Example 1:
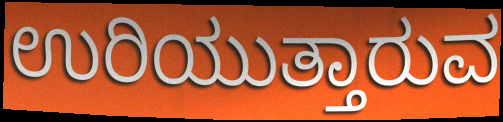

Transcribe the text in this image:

ಉರಿಯುತ್ತಾರುವ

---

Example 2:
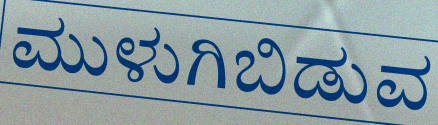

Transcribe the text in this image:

ಮುಳುಗಿಬಿಡುವ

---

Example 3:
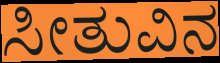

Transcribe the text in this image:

ಸೀತುವಿನ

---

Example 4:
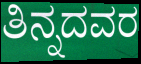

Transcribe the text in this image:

ತಿನ್ನದವರ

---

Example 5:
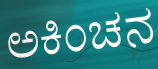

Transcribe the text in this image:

ಅಕಿಂಚನ